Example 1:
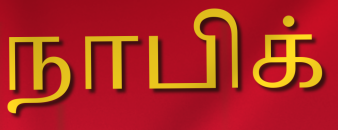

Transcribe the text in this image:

நாபிக்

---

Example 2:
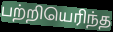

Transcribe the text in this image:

பற்றியெரிந்த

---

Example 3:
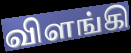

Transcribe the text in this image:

விளங்கி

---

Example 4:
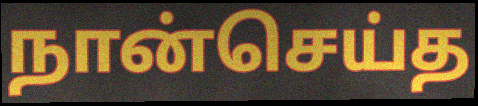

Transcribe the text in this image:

நான்செய்த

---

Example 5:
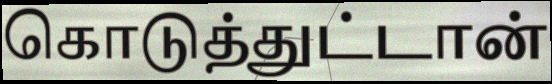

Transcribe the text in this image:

கொடுத்துட்டான்